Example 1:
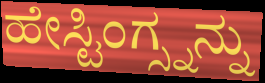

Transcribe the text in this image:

ಹೇಸ್ಟಿಂಗ್ಸ್ನನ್ನು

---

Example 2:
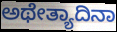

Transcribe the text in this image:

ಅಥೇತ್ಯಾದಿನಾ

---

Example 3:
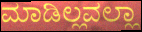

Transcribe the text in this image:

ಮಾಡಿಲ್ಲವಲ್ಲಾ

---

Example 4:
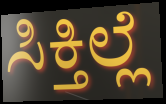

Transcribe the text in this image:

ಸಿಕ್ತಿಲ್ಲೆ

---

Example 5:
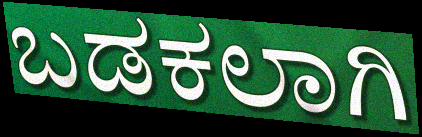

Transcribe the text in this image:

ಬಡಕಲಾಗಿ